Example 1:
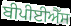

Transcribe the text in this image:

ਬੀਪੀਈਐੱਸ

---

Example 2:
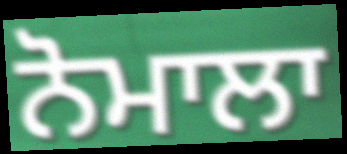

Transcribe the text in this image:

ਨੋਮਾਲਾ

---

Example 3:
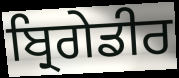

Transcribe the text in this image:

ਬ੍ਰਿਗੇਡੀਰ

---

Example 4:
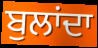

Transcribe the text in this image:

ਬੁਲਾਂਦਾ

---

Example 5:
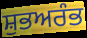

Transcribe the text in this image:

ਸ਼ੁਭਅਰੰਭ